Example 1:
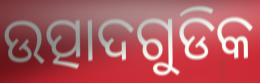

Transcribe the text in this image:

ଉତ୍ପାଦଗୁଡିକ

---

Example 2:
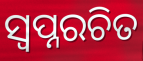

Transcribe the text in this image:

ସ୍ୱପ୍ନରଚିତ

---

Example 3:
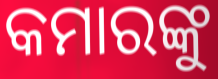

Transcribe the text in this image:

କମାରଙ୍କୁ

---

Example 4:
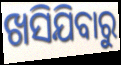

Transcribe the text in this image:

ଖସିଯିବାରୁ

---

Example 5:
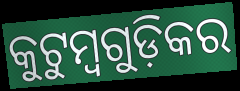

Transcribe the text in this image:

କୁଟୁମ୍ବଗୁଡ଼ିକର